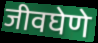
जीवघेणे